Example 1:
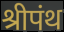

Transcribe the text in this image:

श्रीपंथ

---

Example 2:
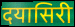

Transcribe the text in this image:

दयासिरी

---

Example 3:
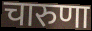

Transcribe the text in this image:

चारुणा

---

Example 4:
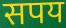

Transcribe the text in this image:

सपय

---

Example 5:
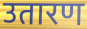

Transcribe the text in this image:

उतारण